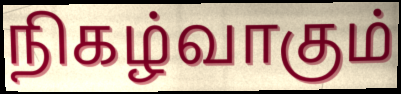
நிகழ்வாகும்